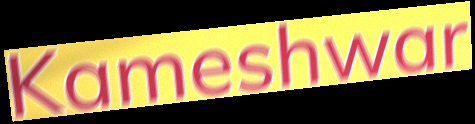
Kameshwar